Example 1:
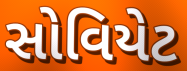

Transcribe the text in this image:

સોવિયેટ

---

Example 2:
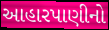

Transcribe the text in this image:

આહારપાણીનો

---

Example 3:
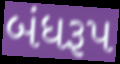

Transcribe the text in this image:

બંધરૂપ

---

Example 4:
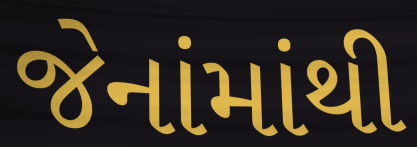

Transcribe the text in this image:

જેનાંમાંથી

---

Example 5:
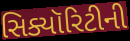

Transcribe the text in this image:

સિક્યૉરિટીની